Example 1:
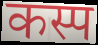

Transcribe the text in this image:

कस्प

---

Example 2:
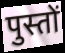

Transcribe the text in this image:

पुस्तों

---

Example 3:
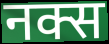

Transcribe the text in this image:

नक्स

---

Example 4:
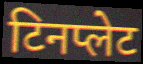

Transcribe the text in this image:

टिनप्लेट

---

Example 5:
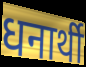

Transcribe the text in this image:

धनार्थी